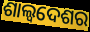
ଶାଲ୍ୱଦେଶର